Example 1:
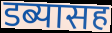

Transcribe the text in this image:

डब्यासह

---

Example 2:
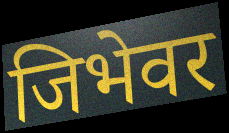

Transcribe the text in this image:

जिभेवर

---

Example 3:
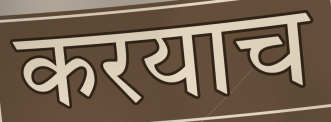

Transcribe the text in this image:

करयाच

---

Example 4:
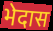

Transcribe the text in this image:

भेदास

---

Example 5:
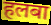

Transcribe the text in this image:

हलबा